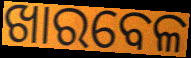
ଖାରବେଳ